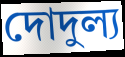
দোদুল্য